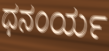
ಧನಂರ್ಯ